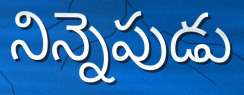
నిన్నెపుడు